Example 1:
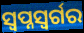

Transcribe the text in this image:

ସ୍ୱପ୍ନସ୍ୱର୍ଗର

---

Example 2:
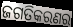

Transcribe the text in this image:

ଜଗତିକରଣର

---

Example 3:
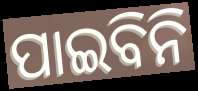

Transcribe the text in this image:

ପାଇବିନି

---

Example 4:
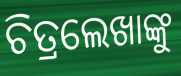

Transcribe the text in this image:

ଚିତ୍ରଲେଖାଙ୍କୁ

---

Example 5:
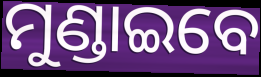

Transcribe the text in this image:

ମୁଣ୍ଡାଇବେ